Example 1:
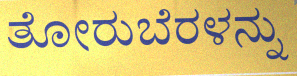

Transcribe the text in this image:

ತೋರುಬೆರಳನ್ನು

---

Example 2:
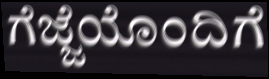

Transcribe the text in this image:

ಗೆಜ್ಜೆಯೊಂದಿಗೆ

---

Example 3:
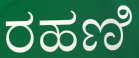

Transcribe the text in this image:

ರಹಣಿ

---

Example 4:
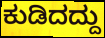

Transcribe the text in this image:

ಕುಡಿದದ್ದು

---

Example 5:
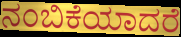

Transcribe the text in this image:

ನಂಬಿಕೆಯಾದರೆ